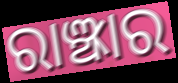
ରାଞ୍ଝାର